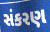
સંકરણ